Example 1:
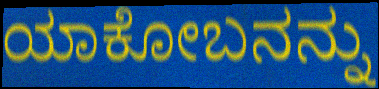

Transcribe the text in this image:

ಯಾಕೋಬನನ್ನು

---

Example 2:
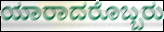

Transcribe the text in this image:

ಯಾರಾದರೊಬ್ಬರು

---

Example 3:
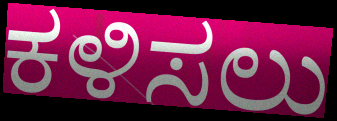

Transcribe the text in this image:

ಕಳಿಸಲು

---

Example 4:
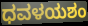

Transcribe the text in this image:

ಧವಳಯಶಂ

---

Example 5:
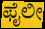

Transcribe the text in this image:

ಫೈಲೀ